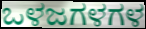
ಒಳಜಗಳಗಳ